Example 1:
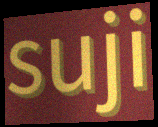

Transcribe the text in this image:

suji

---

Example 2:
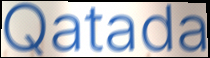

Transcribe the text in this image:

Qatada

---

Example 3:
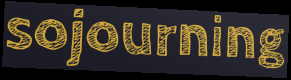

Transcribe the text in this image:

sojourning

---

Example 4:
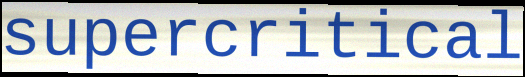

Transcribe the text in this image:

supercritical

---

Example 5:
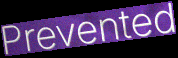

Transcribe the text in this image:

Prevented